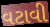
વટાવી